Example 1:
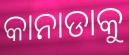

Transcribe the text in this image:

କାନାଡାକୁ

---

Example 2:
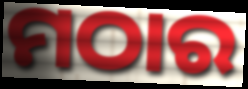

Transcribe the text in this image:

ମଠାର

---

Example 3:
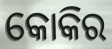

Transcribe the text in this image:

କୋକିର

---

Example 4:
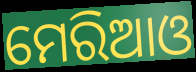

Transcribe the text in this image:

ମେରିଆଓ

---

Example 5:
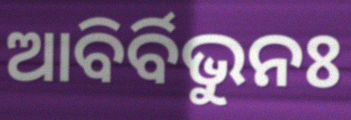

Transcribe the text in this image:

ଆବିର୍ବିଭୁନଃ